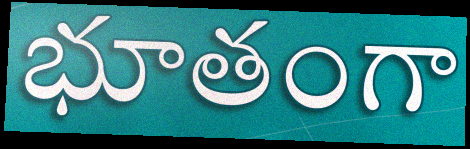
భూతంగా